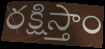
రక్షిస్తాం